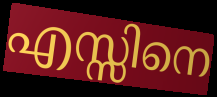
എസ്സിനെ